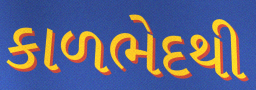
કાળભેદથી